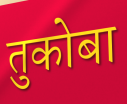
तुकोबा